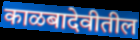
काळबादेवीतील